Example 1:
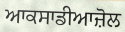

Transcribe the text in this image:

ਆਕਸਾਡੀਆਜ਼ੋਲ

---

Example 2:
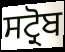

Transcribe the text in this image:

ਸਟ੍ਰੋਬ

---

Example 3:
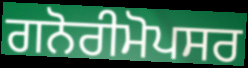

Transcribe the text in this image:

ਗਨੋਰੀਮੋਪਸਰ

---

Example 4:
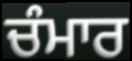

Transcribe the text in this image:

ਚੰਮਾਰ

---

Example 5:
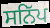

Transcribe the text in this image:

ਸਨਿੱਪ